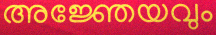
അജ്ഞേയവും